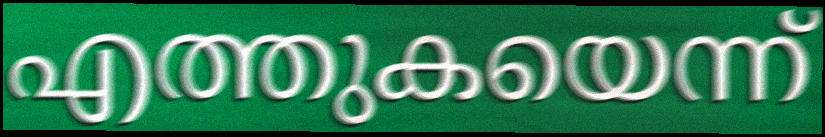
എത്തുകയെന്ന്